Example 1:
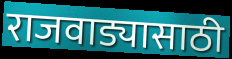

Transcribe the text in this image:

राजवाड्यासाठी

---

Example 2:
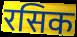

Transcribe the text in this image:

रसिक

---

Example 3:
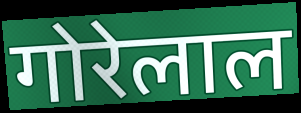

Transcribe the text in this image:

गोरेलाल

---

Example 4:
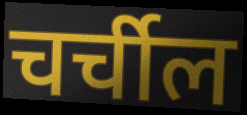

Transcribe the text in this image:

चर्चील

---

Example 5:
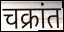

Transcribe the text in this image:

चक्रांत